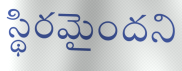
స్థిరమైందని